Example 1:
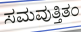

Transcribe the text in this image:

ಸಮವುತ್ತಿತಂ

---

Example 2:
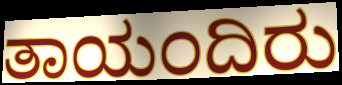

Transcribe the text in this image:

ತಾಯಂದಿರು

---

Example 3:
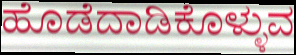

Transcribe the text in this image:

ಹೊಡೆದಾಡಿಕೊಳ್ಳುವ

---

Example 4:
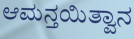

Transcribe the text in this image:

ಆಮನ್ತಯಿತ್ವಾನ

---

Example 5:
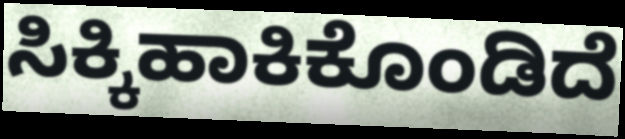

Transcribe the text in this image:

ಸಿಕ್ಕಿಹಾಕಿಕೊಂಡಿದೆ